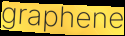
graphene